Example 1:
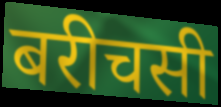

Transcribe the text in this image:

बरीचसी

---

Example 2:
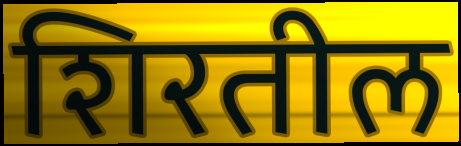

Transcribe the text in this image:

शिरतील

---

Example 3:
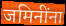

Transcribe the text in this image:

जमिनींना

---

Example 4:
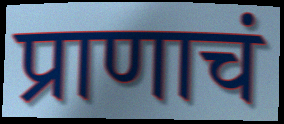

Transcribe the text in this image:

प्राणाचं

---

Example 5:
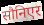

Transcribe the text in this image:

सौनिएर